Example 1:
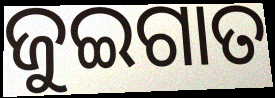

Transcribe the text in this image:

ଜୁଇଗାତ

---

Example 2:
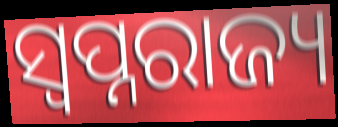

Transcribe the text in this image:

ସ୍ୱପ୍ନରାଜ୍ୟ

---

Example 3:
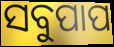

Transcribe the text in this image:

ସବୁପାପ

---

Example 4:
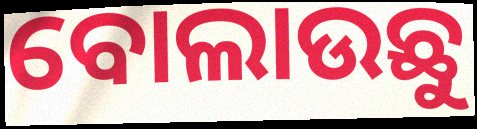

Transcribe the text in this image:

ବୋଲାଉଛୁ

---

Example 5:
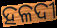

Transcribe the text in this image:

ହଳଦୀ